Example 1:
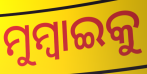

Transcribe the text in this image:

ମୁମ୍ବାଇକୁ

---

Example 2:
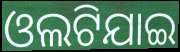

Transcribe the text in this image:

ଓଲଟିଯାଇ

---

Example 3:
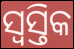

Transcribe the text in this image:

ସ୍ୱସ୍ତିକ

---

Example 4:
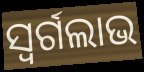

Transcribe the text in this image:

ସ୍ୱର୍ଗଲାଭ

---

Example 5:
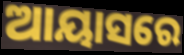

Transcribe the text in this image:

ଆୟାସରେ